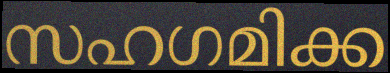
സഹഗമിക്ക